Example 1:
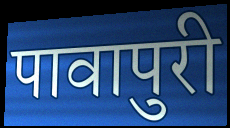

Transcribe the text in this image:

पावापुरी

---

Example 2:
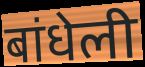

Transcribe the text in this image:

बांधेली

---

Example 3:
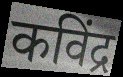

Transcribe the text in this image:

कविंद्र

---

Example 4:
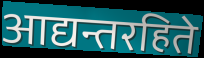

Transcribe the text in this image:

आद्यन्तरहिते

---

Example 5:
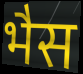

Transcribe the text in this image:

भैस